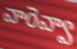
వారెవ్వా